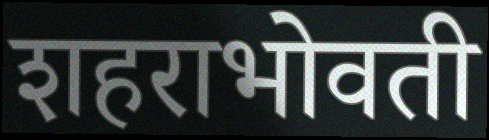
शहराभोवती